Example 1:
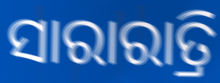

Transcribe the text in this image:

ସାରାରାତ୍ରି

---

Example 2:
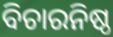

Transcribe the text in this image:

ବିଚାରନିଷ୍ଠ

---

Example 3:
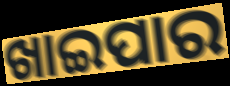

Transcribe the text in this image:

ଖାଇପାର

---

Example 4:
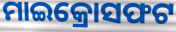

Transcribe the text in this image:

ମାଇକ୍ରୋସଫଟ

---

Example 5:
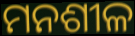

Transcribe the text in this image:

ମନଶୀଳ